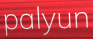
palyun